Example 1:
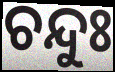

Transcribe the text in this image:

ଚନ୍ଦୁଃ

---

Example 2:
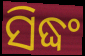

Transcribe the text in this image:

ସିଦ୍ଧଂ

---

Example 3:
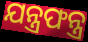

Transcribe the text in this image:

ଯନ୍ତ୍ରଫନ୍ତ୍ର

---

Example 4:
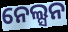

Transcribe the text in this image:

ନେଲ୍ସନ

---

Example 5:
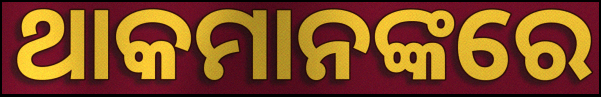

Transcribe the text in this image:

ଥାକମାନଙ୍କରେ